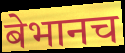
बेभानच